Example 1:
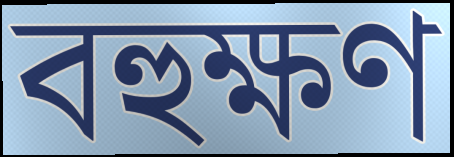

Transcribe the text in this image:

বহুক্ষণ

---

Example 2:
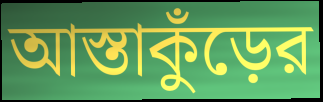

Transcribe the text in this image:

আস্তাকুঁড়ের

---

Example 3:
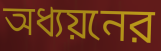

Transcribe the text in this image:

অধ্যয়নের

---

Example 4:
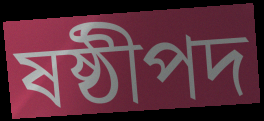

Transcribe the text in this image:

ষষ্ঠীপদ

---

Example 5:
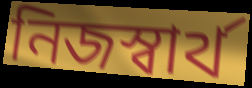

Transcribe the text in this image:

নিজস্বার্থ